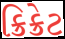
ક્રિક્રેટ